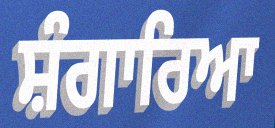
ਸ਼ੰਗਾਰਿਆ